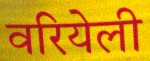
वरियेली